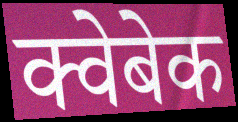
क्वेबेक